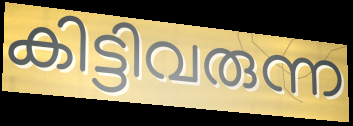
കിട്ടിവരുന്ന